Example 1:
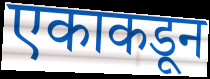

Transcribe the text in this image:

एकाकडून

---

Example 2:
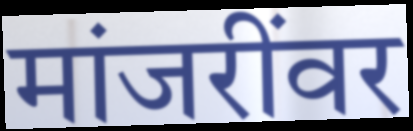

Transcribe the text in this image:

मांजरींवर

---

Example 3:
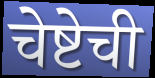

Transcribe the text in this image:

चेष्टेची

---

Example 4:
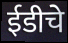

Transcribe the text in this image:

ईडीचे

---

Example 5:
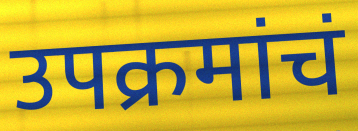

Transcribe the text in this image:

उपक्रमांचं